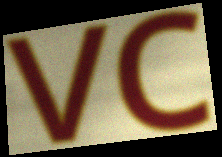
vc